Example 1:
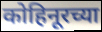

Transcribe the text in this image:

कोहिनूरच्या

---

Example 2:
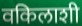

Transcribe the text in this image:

वकिलाशी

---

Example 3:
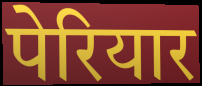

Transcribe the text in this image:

पेरियार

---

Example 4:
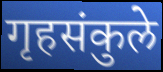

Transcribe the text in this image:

गृहसंकुले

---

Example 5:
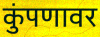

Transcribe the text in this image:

कुंपणावर